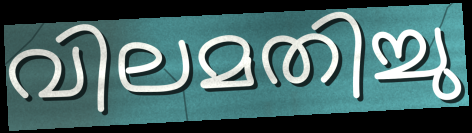
വിലമതിച്ചു